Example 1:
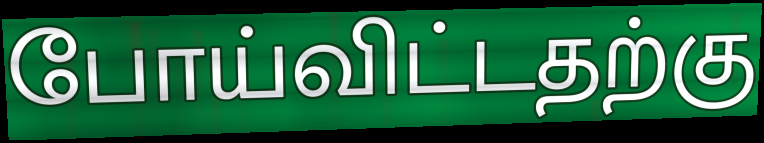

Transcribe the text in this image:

போய்விட்டதற்கு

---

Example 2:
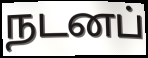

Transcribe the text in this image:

நடனப்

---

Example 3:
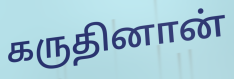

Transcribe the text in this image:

கருதினான்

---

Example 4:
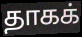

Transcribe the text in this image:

தாகக்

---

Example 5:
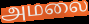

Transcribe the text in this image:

அமலை